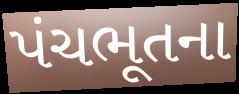
પંચભૂતના